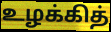
உழக்கித்